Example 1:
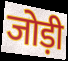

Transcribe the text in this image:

जोड़ी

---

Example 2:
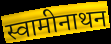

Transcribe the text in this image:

स्वामीनाथन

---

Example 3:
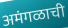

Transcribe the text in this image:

अमंगळाची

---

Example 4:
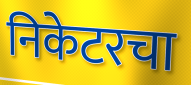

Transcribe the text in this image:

निकेटरचा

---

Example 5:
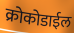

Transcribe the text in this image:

क्रोकोडाईल